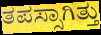
ತಪಸ್ಸಾಗಿತ್ತು